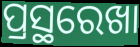
ପ୍ରସ୍ଥରେଖା